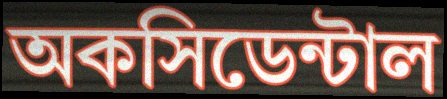
অকসিডেন্টাল